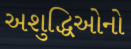
અશુદ્ધિઓનો